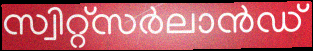
സ്വിറ്റ്സർലാൻഡ്